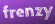
frenzy